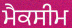
ਮੈਕਸੀਮ